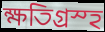
ক্ষতিগ্রস্হ